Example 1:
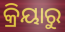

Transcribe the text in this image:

କ୍ରିୟାରୁ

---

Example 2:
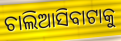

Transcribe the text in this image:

ଚାଲିଆସିବାଟାକୁ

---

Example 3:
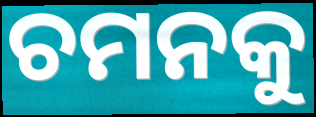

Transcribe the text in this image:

ଚମନକୁ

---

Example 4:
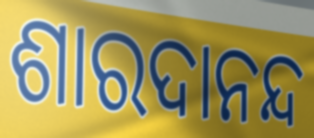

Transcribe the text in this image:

ଶାରଦାନନ୍ଦ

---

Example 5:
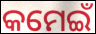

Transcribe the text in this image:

କମେଇଁ